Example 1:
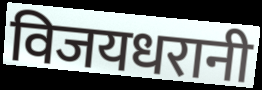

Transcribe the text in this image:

विजयधरानी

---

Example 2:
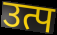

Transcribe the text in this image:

उत्प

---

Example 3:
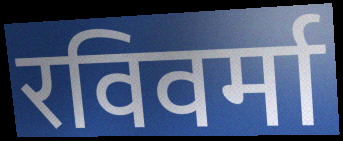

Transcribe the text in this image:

रविवर्मा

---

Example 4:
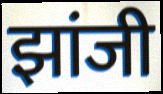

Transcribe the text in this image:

झांजी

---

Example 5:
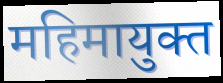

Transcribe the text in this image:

महिमायुक्‍त